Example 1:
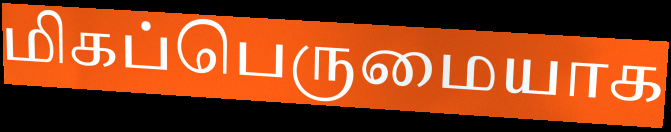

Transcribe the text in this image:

மிகப்பெருமையாக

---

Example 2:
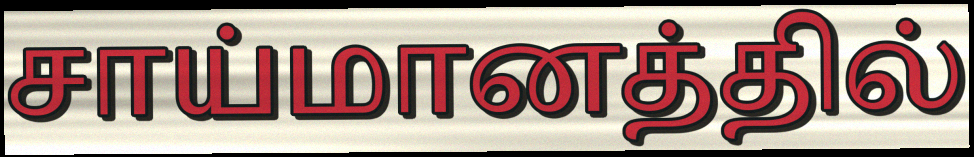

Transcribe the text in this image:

சாய்மானத்தில்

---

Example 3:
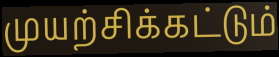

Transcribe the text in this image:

முயற்சிக்கட்டும்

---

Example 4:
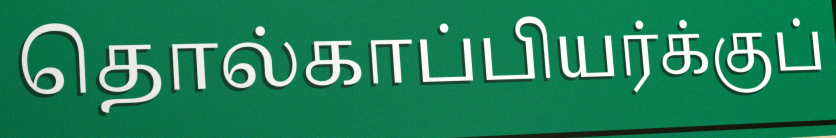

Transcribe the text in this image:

தொல்காப்பியர்க்குப்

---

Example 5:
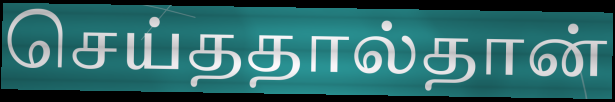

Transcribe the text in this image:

செய்ததால்தான்